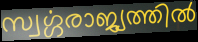
സ്വൎഗ്ഗരാജ്യത്തിൽ